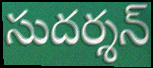
సుదర్శన్